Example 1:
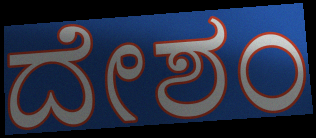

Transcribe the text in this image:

ದೇಶಂ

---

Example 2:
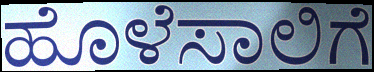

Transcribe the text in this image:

ಹೊಳೆಸಾಲಿಗೆ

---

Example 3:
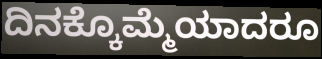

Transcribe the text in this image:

ದಿನಕ್ಕೊಮ್ಮೆಯಾದರೂ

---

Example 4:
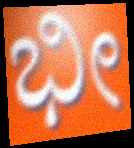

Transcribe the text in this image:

ಭೀ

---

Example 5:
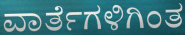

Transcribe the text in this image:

ವಾರ್ತೆಗಳಿಗಿಂತ